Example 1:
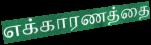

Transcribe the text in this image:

எக்காரணத்தை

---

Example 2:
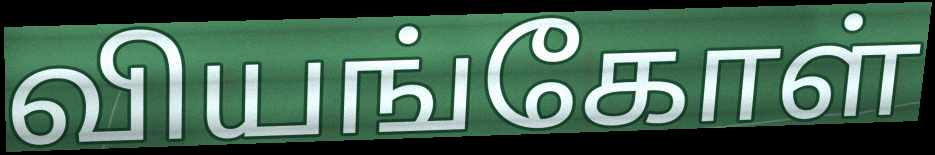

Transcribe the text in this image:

வியங்கோள்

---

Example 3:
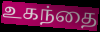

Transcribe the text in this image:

உகந்தை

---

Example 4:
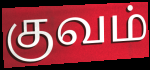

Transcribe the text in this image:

குவம்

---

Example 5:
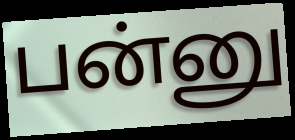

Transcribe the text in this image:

பன்னு